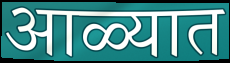
आळ्यात